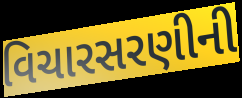
વિચારસરણીની